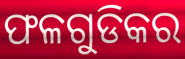
ଫଳଗୁଡିକର